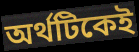
অর্থটিকেই